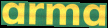
arma